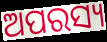
ଅପରସ୍ୟ